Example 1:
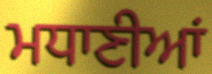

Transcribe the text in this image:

ਮਧਾਣੀਆਂ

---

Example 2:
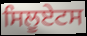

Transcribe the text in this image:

ਸਿਲੂਏਟਸ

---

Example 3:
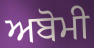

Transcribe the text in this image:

ਅਬੋਮੀ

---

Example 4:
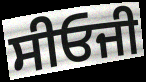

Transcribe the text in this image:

ਸੀਓਜੀ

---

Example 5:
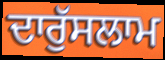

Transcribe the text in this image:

ਦਾਰੁੱਸਲਾਮ